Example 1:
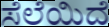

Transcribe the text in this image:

ಸೆಲೆಯಿದೆ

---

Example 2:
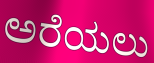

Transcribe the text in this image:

ಅರೆಯಲು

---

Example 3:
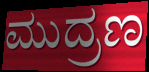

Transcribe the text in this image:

ಮುದ್ರಣ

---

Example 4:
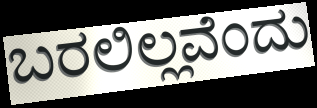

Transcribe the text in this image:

ಬರಲಿಲ್ಲವೆಂದು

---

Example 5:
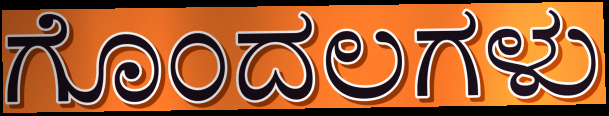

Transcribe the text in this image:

ಗೊಂದಲಗಳು